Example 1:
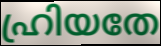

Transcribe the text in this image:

ഹ്രിയതേ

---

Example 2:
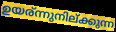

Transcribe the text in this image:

ഉയര്ന്നുനില്ക്കുന്ന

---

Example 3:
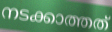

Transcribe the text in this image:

നടക്കാത്തത്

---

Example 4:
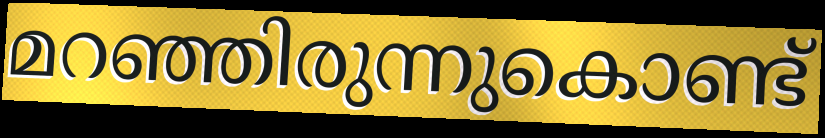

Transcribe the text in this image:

മറഞ്ഞിരുന്നുകൊണ്ട്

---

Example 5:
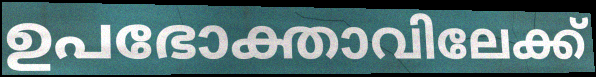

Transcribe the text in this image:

ഉപഭോക്താവിലേക്ക്